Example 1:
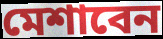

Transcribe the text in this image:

মেশাবেন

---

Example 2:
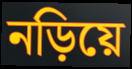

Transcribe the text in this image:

নড়িয়ে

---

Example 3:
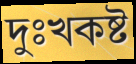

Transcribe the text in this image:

দুঃখকষ্ট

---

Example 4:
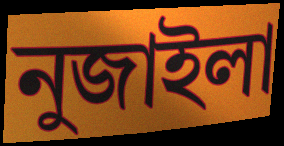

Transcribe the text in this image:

নুজাইলা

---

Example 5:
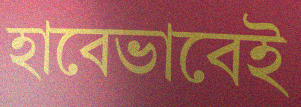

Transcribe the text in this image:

হাবেভাবেই